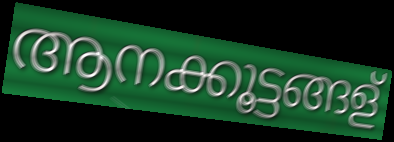
ആനക്കൂട്ടങ്ങള്